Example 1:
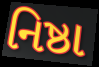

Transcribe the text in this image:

નિષ્ઠા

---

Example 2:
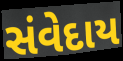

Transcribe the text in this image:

સંવેદાય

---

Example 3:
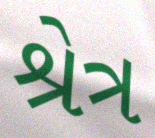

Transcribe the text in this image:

શ્રેત્ર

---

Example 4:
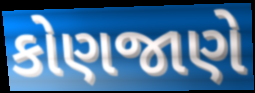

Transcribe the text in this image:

કોણજાણે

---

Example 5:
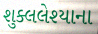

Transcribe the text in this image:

શુક્લલેશ્યાના